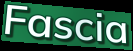
Fascia